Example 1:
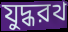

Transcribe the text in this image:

যুদ্ধরথ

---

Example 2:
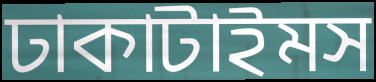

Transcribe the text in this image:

ঢাকাটাইমস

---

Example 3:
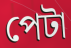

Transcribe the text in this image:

পেটা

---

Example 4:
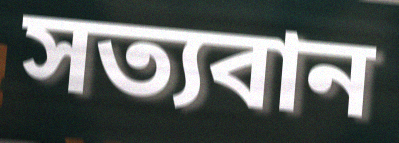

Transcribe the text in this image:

সত্যবান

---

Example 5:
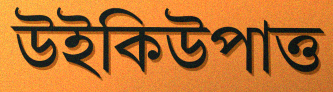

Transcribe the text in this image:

উইকিউপাত্ত